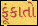
ફૂંકાતો